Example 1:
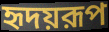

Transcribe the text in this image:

হৃদয়রূপ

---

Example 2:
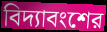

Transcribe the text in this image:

বিদ্যাবংশের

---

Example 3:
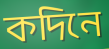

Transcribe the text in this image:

কদিনে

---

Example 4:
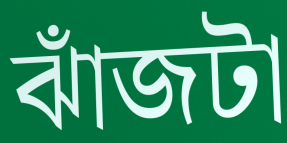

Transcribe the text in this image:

ঝাঁজটা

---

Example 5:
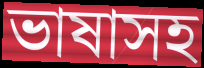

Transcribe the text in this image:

ভাষাসহ